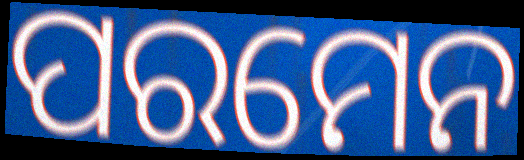
ପରମେନ